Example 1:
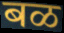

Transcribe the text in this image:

बळ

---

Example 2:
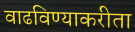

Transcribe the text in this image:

वाढविण्याकरीता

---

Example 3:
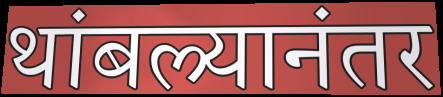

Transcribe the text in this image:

थांबल्यानंतर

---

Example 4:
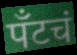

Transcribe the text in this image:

पँटचं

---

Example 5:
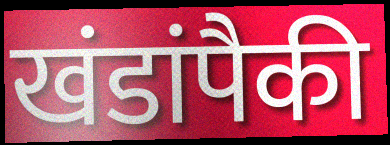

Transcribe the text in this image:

खंडांपैकी